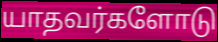
யாதவர்களோடு